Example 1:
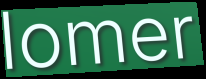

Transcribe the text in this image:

lomer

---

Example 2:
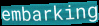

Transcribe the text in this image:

embarking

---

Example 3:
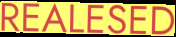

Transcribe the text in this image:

REALESED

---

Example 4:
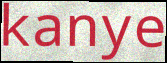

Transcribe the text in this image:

kanye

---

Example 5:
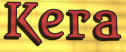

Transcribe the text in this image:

Kera